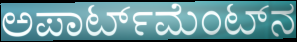
ಅಪಾರ್ಟ್‌ಮೆಂಟ್‌ನ